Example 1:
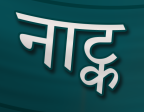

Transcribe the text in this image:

नाट्क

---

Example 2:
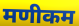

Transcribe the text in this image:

मणीकम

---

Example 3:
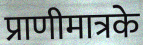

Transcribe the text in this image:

प्राणीमात्रके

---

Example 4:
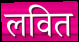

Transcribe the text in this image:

लवित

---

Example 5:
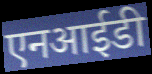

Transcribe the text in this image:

एनआईडी